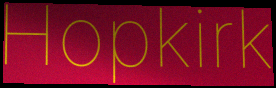
Hopkirk